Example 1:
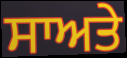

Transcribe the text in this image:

ਸਾਅਤੇ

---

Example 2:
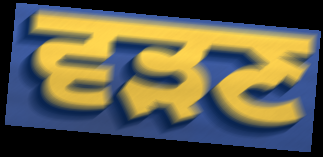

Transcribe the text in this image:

ਵੜਣ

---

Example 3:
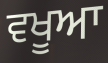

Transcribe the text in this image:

ਵਖੂਆ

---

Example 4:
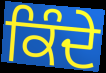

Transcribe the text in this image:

ਕਿੰਦੇ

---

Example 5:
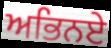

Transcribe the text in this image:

ਅਭਿਨਏ